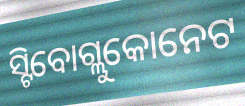
ସ୍ଟିବୋଗ୍ଲୁକୋନେଟ